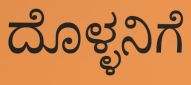
ದೊಳ್ಳನಿಗೆ